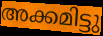
അക്കമിട്ടു